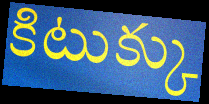
కిటుక్కు